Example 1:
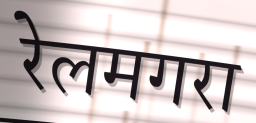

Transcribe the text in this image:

रेलमगरा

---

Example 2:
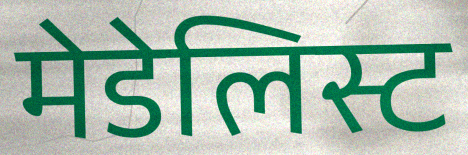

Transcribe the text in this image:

मेडेलिस्ट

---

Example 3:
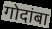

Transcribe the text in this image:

गोदांबा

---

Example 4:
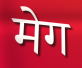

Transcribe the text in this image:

मेग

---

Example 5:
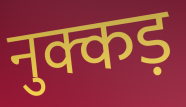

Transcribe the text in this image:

नुक्कड़